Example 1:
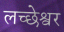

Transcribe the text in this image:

लच्छेश्वर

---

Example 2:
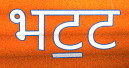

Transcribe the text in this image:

भट॒ट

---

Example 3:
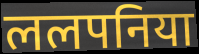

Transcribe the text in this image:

ललपनिया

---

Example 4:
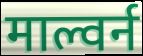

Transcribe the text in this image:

माल्वर्न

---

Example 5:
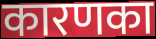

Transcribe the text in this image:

कारणका